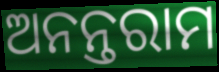
ଅନନ୍ତରାମ